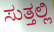
ಸುತ್ತಲ್ಲಿ